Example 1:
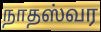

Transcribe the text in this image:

நாதஸ்வர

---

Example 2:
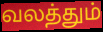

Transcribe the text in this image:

வலத்தும்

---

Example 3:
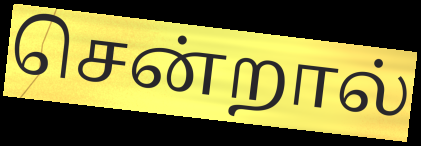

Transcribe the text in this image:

சென்றால்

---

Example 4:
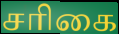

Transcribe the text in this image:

சரிகை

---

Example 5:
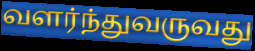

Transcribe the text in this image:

வளர்ந்துவருவது